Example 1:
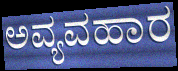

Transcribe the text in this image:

ಅವ್ಯವಹಾರ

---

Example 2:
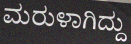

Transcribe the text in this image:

ಮರುಳಾಗಿದ್ದು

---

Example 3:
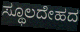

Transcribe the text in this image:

ಸ್ಥೂಲದೇಹದ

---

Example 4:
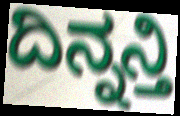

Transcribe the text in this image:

ದಿನ್ನನ್ತಿ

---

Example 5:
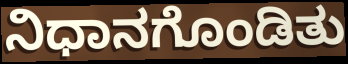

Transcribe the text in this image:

ನಿಧಾನಗೊಂಡಿತು